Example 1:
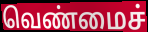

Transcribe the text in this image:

வெண்மைச்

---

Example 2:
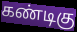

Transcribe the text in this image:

கண்டிகு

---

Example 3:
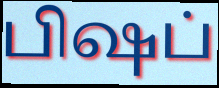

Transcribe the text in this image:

பிஷப்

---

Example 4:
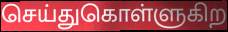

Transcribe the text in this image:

செய்துகொள்ளுகிற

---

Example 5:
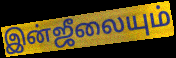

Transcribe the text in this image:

இன்ஜீலையும்